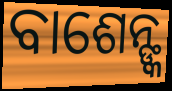
ବାଶେନ୍ଙ୍କ